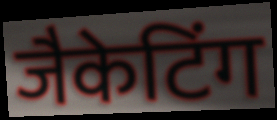
जैकेटिंग